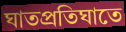
ঘাতপ্রতিঘাতে